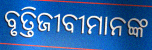
ବୃତ୍ତିଜୀବୀମାନଙ୍କ